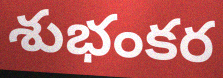
శుభంకర